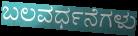
ಬಲವರ್ಧನೆಗಳು